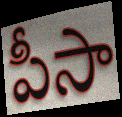
పీసా